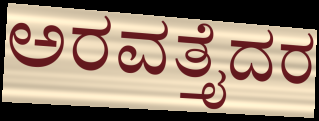
ಅರವತ್ತೈದರ